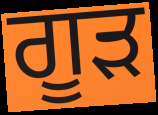
ਗੂੜ